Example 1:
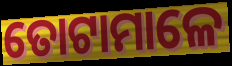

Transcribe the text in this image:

ତୋଟାମାଳେ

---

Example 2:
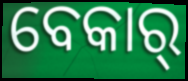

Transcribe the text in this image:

ବେକାର୍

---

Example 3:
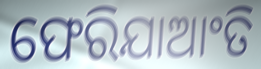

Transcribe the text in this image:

ଫେରିଯାଆଂତି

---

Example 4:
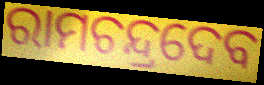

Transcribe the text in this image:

ରାମଚନ୍ଦ୍ରଦେବ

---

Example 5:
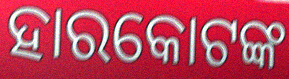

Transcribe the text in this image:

ହାରକୋଟଙ୍କ